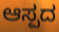
ಆಸ್ಪದ